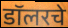
डॉलरचे